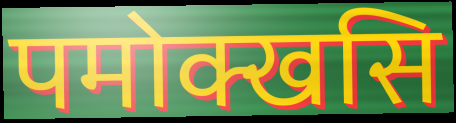
पमोक्खसि